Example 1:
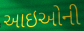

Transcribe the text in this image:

આઇઓની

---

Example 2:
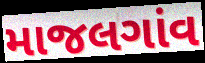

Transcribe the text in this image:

માજલગાંવ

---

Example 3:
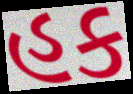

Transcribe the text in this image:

હક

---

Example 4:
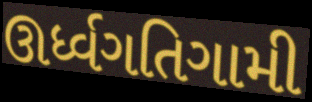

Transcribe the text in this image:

ઊર્ધ્વગતિગામી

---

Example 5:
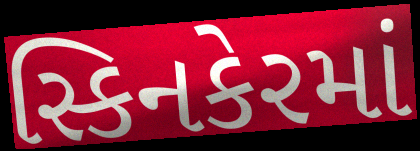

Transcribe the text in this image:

સ્કિનકેરમાં